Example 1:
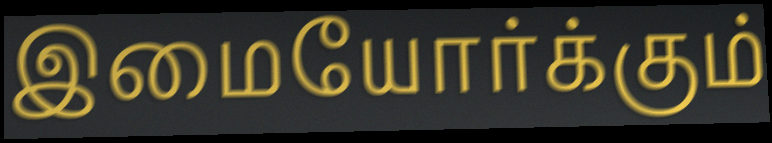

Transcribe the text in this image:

இமையோர்க்கும்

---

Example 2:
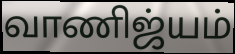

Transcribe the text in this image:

வாணிஜ்யம்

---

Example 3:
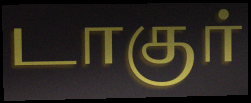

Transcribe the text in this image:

டாகுர்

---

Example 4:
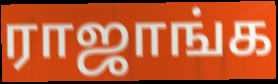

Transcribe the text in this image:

ராஜாங்க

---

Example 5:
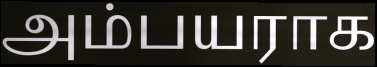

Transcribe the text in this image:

அம்பயராக